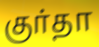
குர்தா